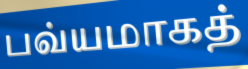
பவ்யமாகத்